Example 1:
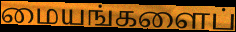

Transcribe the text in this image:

மையங்களைப்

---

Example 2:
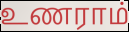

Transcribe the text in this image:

உணராம்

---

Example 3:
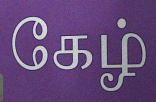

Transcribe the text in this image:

கேழ்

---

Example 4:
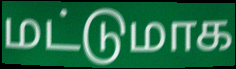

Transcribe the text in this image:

மட்டுமாக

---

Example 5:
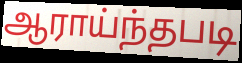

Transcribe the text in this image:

ஆராய்ந்தபடி